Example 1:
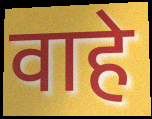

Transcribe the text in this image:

वाहे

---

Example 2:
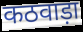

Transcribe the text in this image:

कठवाड़ा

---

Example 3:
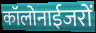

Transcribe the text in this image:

कॉलोनाईजरों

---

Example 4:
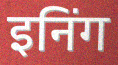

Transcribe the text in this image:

इनिंग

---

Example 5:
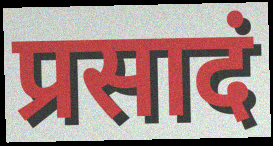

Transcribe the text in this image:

प्रसादं